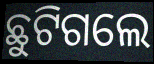
ଛୁଟିଗଲେ